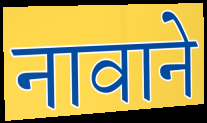
नावाने